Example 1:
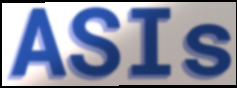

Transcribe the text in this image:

ASIs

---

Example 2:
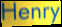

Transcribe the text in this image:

Henry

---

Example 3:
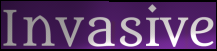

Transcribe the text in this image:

Invasive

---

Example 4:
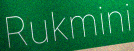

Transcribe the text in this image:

Rukmini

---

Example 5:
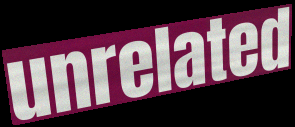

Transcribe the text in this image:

unrelated